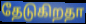
தேடுகிறதா